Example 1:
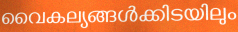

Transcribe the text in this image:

വൈകല്യങ്ങൾക്കിടയിലും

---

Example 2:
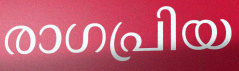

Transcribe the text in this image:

രാഗപ്രിയ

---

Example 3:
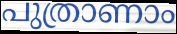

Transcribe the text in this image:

പുത്രാണാം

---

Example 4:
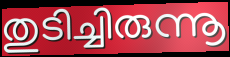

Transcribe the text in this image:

തുടിച്ചിരുന്നൂ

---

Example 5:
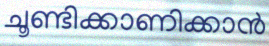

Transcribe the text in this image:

ചൂണ്ടിക്കാണിക്കാൻ